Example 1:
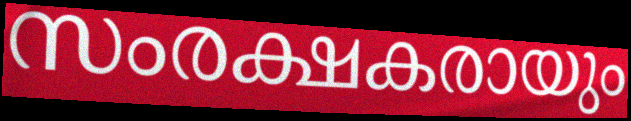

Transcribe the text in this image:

സംരക്ഷകരായും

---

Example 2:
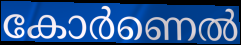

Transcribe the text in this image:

കോർണെൽ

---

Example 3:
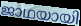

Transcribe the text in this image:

ജാഥയായി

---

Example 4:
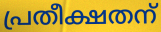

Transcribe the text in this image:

പ്രതീക്ഷതന്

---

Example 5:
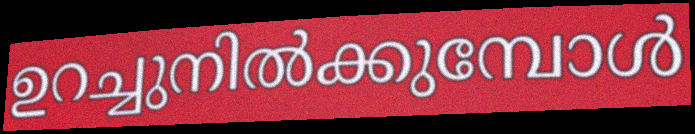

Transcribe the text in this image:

ഉറച്ചുനിൽക്കുമ്പോൾ